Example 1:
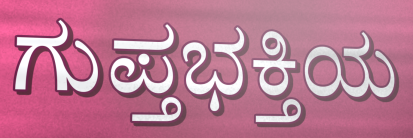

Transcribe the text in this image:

ಗುಪ್ತಭಕ್ತಿಯ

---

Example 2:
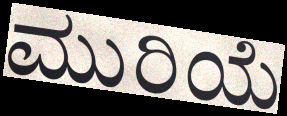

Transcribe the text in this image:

ಮುರಿಯೆ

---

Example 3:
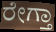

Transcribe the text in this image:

ರೇಗ್ತಾ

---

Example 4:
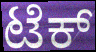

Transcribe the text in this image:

ಟೆಕ್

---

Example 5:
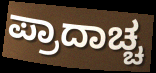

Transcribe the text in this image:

ಪ್ರಾದಾಚ್ಚ